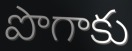
పొగాకు